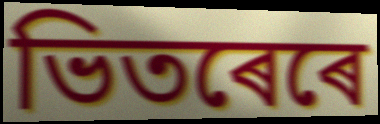
ভিতৰেৰে